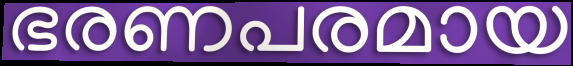
ഭരണപരമായ